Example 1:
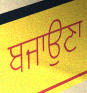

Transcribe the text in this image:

ਬਜਾਉਣਾ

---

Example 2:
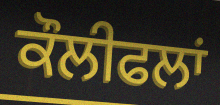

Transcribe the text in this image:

ਕੌਲੀਫਲਾਂ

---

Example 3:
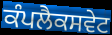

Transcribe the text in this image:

ਕੰਪਲੈਕਸਵੇਟ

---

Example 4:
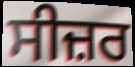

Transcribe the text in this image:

ਸੀਜ਼ਰ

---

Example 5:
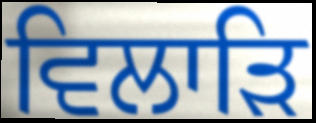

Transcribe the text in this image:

ਵਿਲਾੜਿ